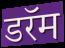
डरॅम